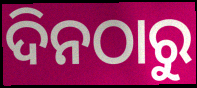
ଦିନଠାରୁ